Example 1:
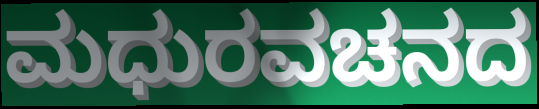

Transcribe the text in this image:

ಮಧುರವಚನದ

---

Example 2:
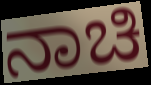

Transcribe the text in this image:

ನಾಚಿ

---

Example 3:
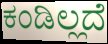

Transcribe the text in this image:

ಕಂಡಿಲ್ಲದೆ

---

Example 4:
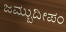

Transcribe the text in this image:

ಜಮ್ಬುದೀಪಂ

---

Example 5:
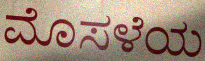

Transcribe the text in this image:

ಮೊಸಳೆಯ